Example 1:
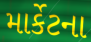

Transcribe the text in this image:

માર્કેટના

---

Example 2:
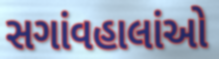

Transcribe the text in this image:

સગાંવહાલાંઓ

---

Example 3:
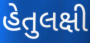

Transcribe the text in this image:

હેતુલક્ષી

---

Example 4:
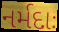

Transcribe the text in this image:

નર્મદાઃ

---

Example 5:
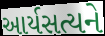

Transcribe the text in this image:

આર્યસત્યને